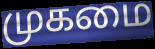
முகமை